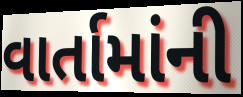
વાર્તામાંની